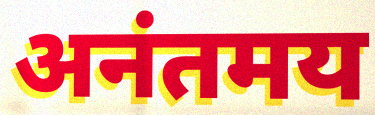
अनंतमय